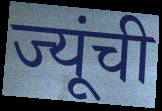
ज्यूंची